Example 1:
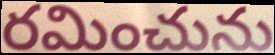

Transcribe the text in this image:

రమించును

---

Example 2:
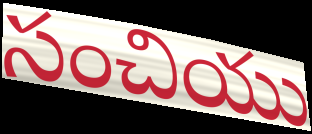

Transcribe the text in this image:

సంచియు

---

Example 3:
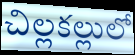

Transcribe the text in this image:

చిల్లకల్లులో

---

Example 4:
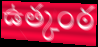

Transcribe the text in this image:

ఉత్కంఠ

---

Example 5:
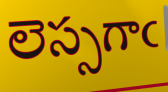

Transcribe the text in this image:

లెస్సగాఁ